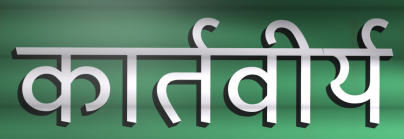
कार्तवीर्य